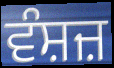
ਵੰਸ਼ਜ਼